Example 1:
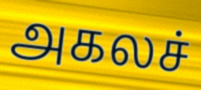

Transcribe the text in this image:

அகலச்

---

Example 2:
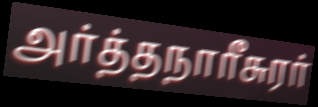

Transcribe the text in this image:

அர்த்தநாரீசுரர்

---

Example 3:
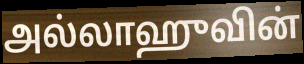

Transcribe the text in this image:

அல்லாஹுவின்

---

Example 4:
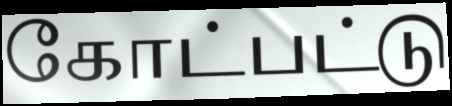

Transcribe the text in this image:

கோட்பட்டு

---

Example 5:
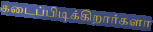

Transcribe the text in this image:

கடைப்பிடிக்கிறார்களா